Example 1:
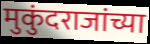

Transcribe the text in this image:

मुकुंदराजांच्या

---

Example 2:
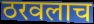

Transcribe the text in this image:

ठरवलाच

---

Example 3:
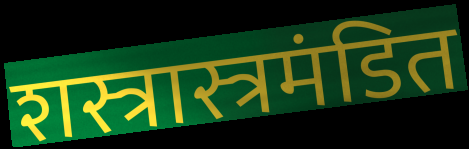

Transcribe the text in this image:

शस्त्रास्त्रमंडित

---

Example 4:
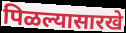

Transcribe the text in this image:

पिळल्यासारखे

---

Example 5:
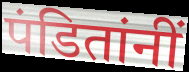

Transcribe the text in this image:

पंडितांनीं